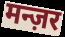
मन्ज़र